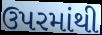
ઉપરમાંથી